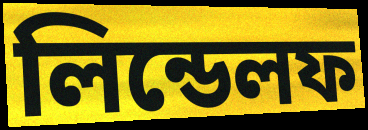
লিন্ডেলফ